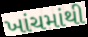
ખાંચમાંથી